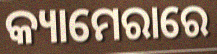
କ୍ୟାମେରାରେ